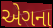
એગના